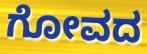
ಗೋವದ